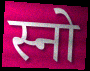
स्नो